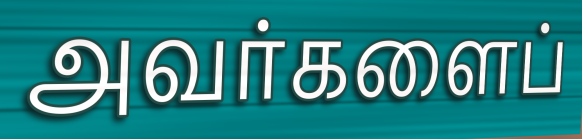
அவர்களைப்